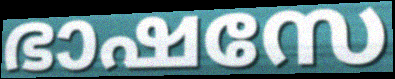
ഭാഷസേ